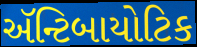
ઍન્ટિબાયોટિક